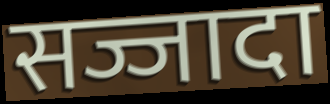
सज्जादा